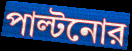
পাল্টনোর